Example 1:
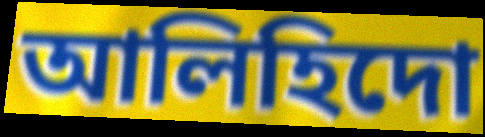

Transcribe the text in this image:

আলিহিদো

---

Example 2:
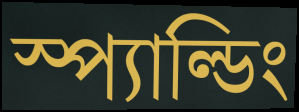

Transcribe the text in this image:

স্প্যাল্ডিং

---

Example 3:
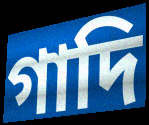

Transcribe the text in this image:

গাদি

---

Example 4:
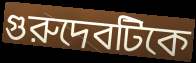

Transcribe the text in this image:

গুরুদেবটিকে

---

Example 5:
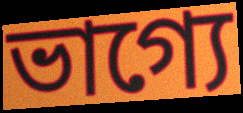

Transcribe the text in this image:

ভাগ্যে